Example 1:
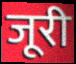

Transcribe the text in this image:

जूरी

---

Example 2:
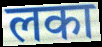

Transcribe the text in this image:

लका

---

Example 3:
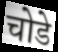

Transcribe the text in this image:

चोडे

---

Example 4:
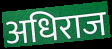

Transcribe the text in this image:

अधिराज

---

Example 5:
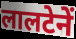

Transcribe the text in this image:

लालटेनें